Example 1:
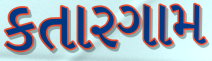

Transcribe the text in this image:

કતારગામ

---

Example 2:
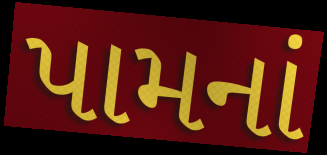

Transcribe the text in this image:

પામનાં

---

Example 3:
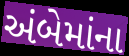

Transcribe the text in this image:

અંબેમાંના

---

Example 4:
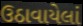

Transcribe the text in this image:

ઉઠાવાયેલાં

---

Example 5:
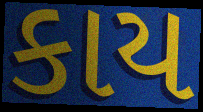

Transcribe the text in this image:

કાય